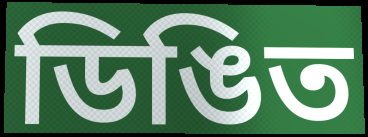
ডিঙিত